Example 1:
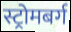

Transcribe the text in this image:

स्ट्रोमबर्ग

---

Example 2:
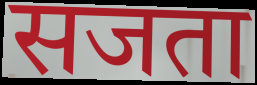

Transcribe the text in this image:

सजता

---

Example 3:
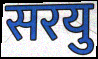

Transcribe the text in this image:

सरयु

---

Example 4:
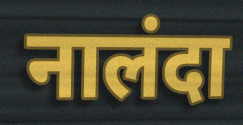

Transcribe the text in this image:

नालंदा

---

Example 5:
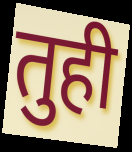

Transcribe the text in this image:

तुही